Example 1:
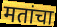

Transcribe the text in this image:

मतांचा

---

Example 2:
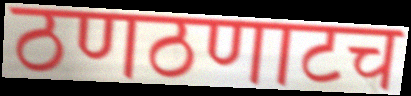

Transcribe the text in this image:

ठणठणाटच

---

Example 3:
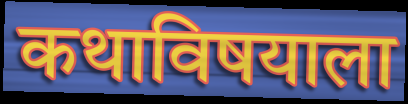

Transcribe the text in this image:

कथाविषयाला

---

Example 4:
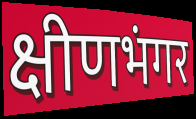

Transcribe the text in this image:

क्षीणभंगर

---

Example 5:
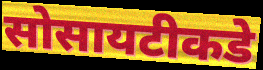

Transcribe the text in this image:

सोसायटीकडे